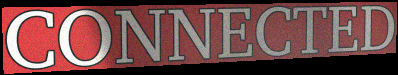
CONNECTED